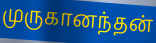
முருகானந்தன்